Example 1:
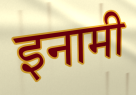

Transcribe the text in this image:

इनामी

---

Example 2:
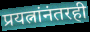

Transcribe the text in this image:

प्रयत्नांनंतरही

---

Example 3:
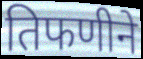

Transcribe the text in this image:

तिफणीने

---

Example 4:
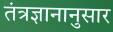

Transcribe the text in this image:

तंत्रज्ञानानुसार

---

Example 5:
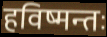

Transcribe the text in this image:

हविष्मन्तः